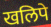
खलिपे